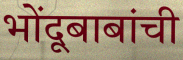
भोंदूबाबांची